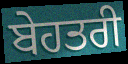
ਬੇਹਤਰੀ